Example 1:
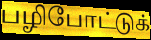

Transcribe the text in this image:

பழிபோட்டுக்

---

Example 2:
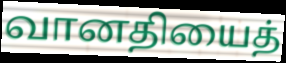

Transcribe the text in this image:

வானதியைத்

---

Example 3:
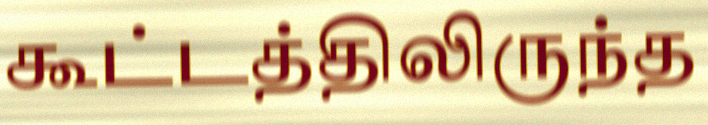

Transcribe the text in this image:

கூட்டத்திலிருந்த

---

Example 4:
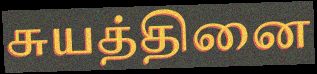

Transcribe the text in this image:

சுயத்தினை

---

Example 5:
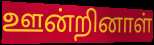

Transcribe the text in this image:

ஊன்றினாள்